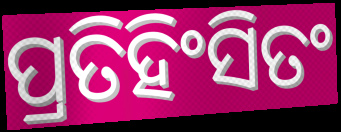
ପ୍ରତିହିଂସିତଂ